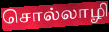
சொல்லாழி